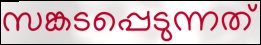
സങ്കടപ്പെടുന്നത്